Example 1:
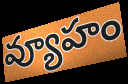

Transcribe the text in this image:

వ్యూహం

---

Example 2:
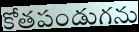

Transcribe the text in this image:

కోతపండుగను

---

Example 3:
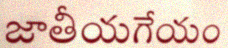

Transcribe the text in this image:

జాతీయగేయం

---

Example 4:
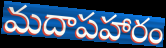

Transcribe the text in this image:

మదాపహారం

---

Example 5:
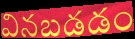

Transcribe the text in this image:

వినబడడం